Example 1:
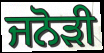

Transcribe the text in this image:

ਜਨੋੜੀ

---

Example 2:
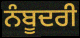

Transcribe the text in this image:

ਨੰਬੂਦਰੀ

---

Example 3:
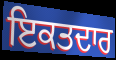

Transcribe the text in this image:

ਇਕਤਦਾਰ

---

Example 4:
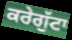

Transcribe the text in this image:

ਕਰੇਗੁੱਟਾ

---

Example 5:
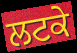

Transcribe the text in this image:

ਲਟਕੇ